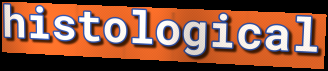
histological